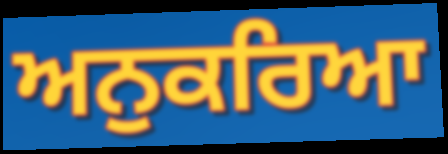
ਅਨੁਕਰਿਆ